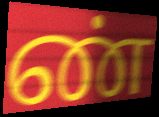
ண்